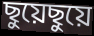
ছুয়েছুয়ে